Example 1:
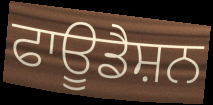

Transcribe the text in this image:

ਫਾਊਡੈਸ਼ਨ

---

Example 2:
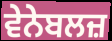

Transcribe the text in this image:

ਵੇਨੇਬਲਜ਼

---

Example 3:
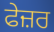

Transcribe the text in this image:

ਫੇਜ਼ਰ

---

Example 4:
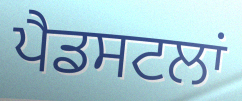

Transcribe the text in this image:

ਪੈਡਸਟਲਾਂ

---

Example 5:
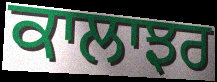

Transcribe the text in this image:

ਕਾਲਾਝਰ